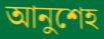
আনুশেহ